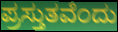
ಪ್ರಸ್ತುತವೆಂದು